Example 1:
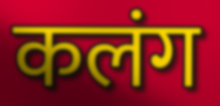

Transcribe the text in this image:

कलंग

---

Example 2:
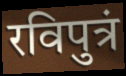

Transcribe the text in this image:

रविपुत्रं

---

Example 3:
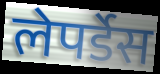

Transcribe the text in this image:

लेपर्डेस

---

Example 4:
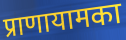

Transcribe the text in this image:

प्राणायामका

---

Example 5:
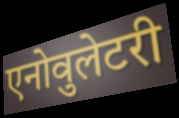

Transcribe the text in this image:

एनोवुलेटरी